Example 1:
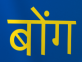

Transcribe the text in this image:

बोंग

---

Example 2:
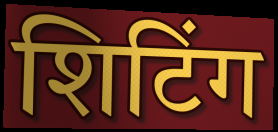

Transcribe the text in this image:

शिटिंग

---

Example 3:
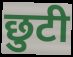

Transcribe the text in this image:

छुटी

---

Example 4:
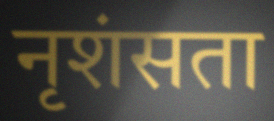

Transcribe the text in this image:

नृशंसता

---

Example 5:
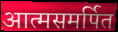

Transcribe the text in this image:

आत्मसमर्पित